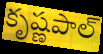
కృష్ణపాల్